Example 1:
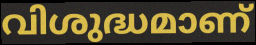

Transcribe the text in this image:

വിശുദ്ധമാണ്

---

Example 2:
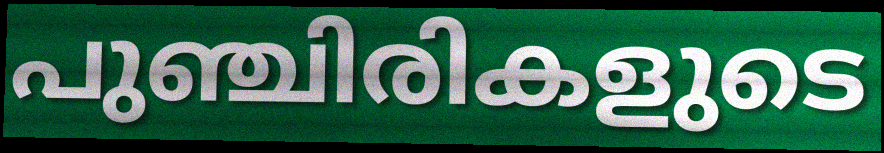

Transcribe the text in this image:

പുഞ്ചിരികളുടെ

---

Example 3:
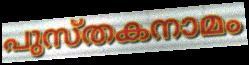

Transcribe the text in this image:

പുസ്തകനാമം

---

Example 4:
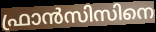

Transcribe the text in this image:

ഫ്രാൻസിസിനെ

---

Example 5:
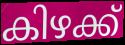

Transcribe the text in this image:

കിഴക്ക്